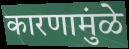
कारणामुंळे